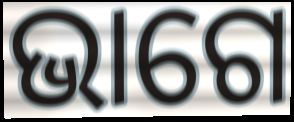
ଭାଗେ